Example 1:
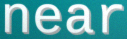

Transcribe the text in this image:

near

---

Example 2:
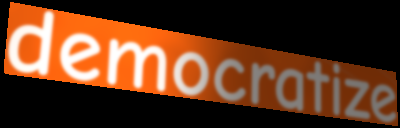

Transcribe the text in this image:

democratize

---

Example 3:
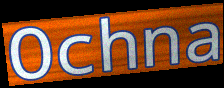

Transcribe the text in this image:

Ochna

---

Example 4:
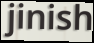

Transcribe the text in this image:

jinish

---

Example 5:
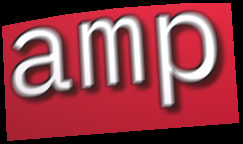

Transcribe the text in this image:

amp